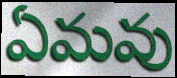
ఏమవు